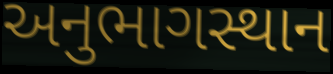
અનુભાગસ્થાન